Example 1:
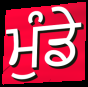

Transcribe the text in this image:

ਮੁੰਡੇ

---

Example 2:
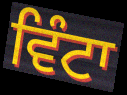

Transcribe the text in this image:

ਵਿੰਟਾ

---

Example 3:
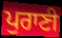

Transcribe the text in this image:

ਪੁਰਾਣੀ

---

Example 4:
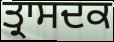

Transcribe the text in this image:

ਤ੍ਰਾਸਦਕ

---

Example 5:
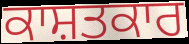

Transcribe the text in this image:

ਕਾਸ਼ਤਕਾਰ